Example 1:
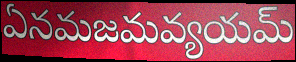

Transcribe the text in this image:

ఏనమజమవ్యయమ్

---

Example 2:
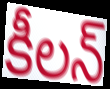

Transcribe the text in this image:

కీలన్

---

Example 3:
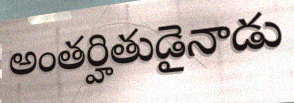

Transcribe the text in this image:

అంతర్హితుడైనాడు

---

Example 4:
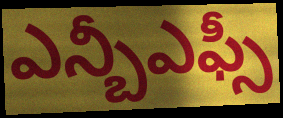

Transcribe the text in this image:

ఎన్బీఎఫ్సీ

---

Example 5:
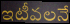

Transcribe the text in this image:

ఇటీవలనే